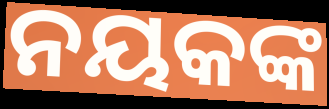
ନୟକଙ୍କ